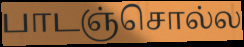
பாடஞ்சொல்ல